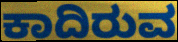
ಕಾದಿರುವ